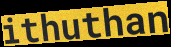
ithuthan